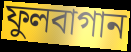
ফুলবাগান